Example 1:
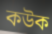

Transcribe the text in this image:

কউক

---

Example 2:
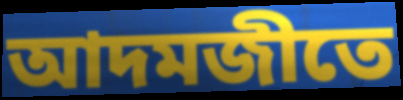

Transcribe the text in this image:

আদমজীতে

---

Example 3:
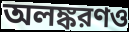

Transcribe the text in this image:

অলঙ্করণও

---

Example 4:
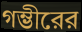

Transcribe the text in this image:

গম্ভীরের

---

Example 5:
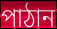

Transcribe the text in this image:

পাঠান